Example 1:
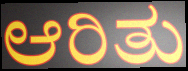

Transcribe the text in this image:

ಆರಿತು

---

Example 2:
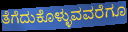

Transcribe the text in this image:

ತೆಗೆದುಕೊಳ್ಳುವವರೆಗೂ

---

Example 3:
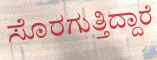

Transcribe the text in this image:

ಸೊರಗುತ್ತಿದ್ದಾರೆ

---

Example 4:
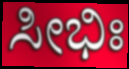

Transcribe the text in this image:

ಸೀಭಿಃ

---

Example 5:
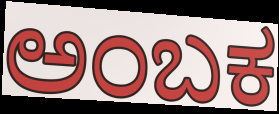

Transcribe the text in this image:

ಅಂಬಕ